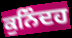
ਕੁਨਿੰਦਹ